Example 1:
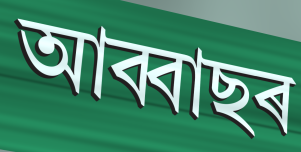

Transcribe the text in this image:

আব্বাছৰ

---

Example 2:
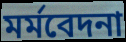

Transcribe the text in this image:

মৰ্মবেদনা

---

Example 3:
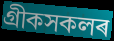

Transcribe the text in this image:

গ্ৰীকসকলৰ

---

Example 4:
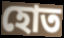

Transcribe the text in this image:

হোত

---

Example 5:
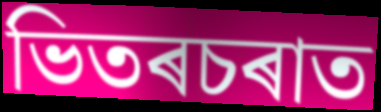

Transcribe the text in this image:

ভিতৰচৰাত